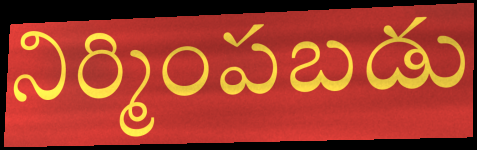
నిర్మింపబడు